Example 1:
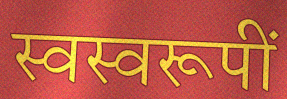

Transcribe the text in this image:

स्वस्वरूपीं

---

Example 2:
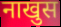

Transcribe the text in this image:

नाखुस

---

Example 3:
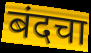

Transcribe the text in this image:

बंदचा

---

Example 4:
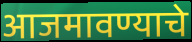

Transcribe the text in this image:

आजमावण्याचे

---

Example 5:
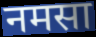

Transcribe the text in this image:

नमसा